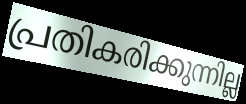
പ്രതികരിക്കുന്നില്ല